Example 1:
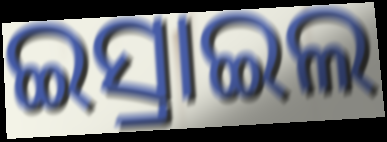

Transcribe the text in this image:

ଇସ୍ରାଇଲ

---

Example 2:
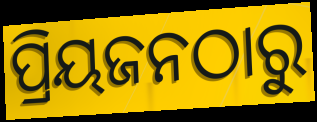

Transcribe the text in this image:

ପ୍ରିୟଜନଠାରୁ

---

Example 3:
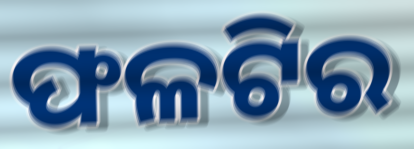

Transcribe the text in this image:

ଫଳଟିର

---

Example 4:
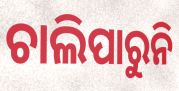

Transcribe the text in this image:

ଚାଲିପାରୁନି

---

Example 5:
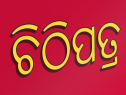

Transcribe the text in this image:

ଚିଠିପତ୍ର